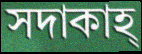
সদাকাহ্